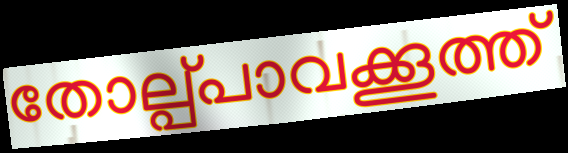
തോല്പ്പാവക്കൂത്ത്